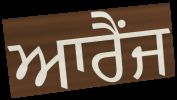
ਆਰੈਂਜ